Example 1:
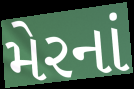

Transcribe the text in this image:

મેરનાં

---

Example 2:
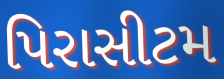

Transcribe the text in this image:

પિરાસીટમ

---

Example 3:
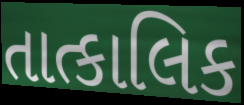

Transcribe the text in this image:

તાત્કાલિક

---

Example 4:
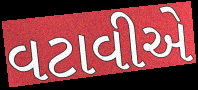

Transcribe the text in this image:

વટાવીએ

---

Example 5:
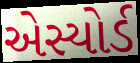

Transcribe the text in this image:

એસ્યોર્ડ